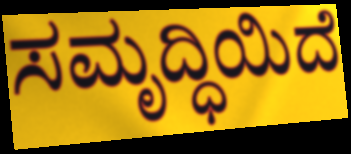
ಸಮೃದ್ಧಿಯಿದೆ